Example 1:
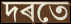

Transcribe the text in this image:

দৰতে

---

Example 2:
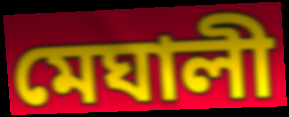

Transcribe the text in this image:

মেঘালী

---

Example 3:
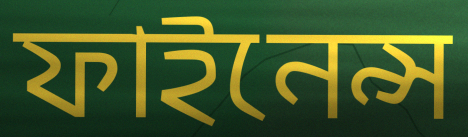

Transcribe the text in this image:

ফাইনেন্স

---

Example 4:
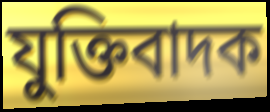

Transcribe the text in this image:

যুক্তিবাদক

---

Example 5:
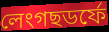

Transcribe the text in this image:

লেংগছডৰ্ফে